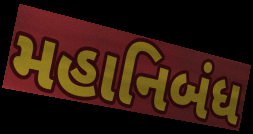
મહાનિબંધ